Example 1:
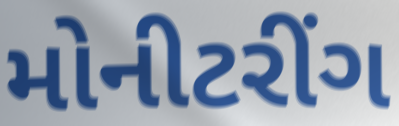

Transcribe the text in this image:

મોનીટરીંગ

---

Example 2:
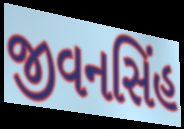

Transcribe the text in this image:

જીવનસિંહ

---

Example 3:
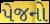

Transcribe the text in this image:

પેજનો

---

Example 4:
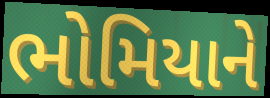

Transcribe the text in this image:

ભોમિયાને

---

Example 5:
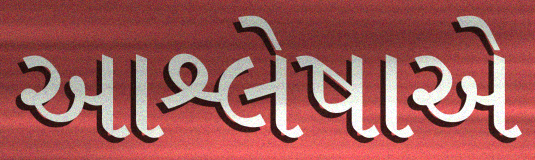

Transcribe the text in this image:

આશ્લેષાએ